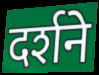
दर्शने